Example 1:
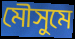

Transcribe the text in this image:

মৌসুমে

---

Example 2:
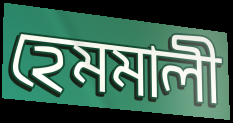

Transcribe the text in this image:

হেমমালী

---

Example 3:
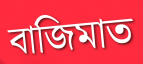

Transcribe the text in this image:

বাজিমাত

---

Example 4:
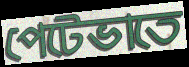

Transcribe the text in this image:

পেটেভাতে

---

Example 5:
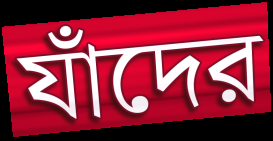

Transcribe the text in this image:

যাঁদের